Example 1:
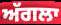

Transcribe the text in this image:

ਅੱਗਲਾ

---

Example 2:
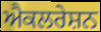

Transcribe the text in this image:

ਐਕਲਰੇਸ਼ਨ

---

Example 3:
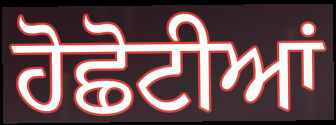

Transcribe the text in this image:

ਹੋਛੋਟੀਆਂ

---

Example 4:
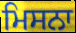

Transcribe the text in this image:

ਮਿਸਨਾ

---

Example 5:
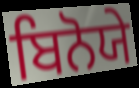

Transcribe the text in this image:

ਬਿਨੋਯੇ